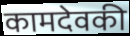
कामदेवकी